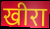
खीरा